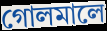
গোলমালে